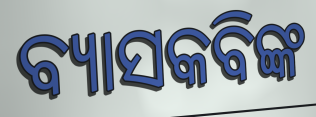
ବ୍ୟାସକବିଙ୍କ